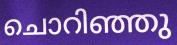
ചൊറിഞ്ഞു